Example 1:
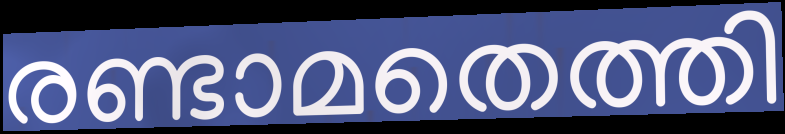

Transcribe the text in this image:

രണ്ടാമതെത്തി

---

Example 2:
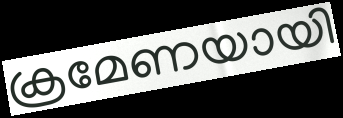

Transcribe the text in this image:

ക്രമേണയായി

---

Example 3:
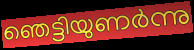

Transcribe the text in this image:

ഞെട്ടിയുണർന്നു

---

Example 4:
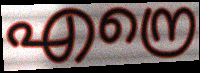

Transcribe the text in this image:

എന്രെ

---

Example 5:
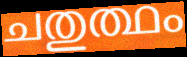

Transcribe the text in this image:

ചതുത്ഥം